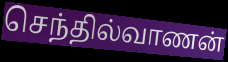
செந்தில்வாணன்